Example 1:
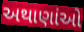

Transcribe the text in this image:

અથાણાંઓ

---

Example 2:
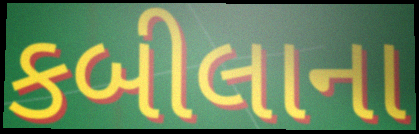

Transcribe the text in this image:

કબીલાના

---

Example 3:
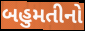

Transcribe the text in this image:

બહુમતીનો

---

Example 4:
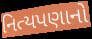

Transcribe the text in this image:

નિત્યપણાનો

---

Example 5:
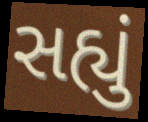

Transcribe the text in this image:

સહ્યું